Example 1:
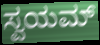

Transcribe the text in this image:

ಸ್ವಯಮ್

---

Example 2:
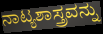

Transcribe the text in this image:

ನಾಟ್ಯಶಾಸ್ತ್ರವನ್ನು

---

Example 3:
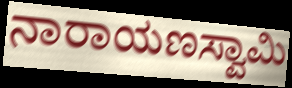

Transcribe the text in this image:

ನಾರಾಯಣಸ್ವಾಮಿ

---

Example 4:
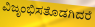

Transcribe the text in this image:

ವಿಜೃಂಭಿಸತೊಡಗಿದರೆ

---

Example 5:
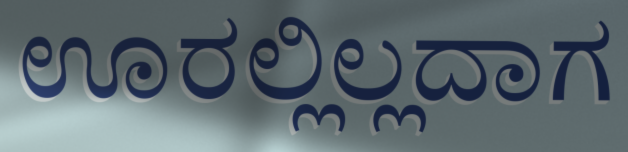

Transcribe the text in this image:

ಊರಲ್ಲಿಲ್ಲದಾಗ